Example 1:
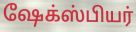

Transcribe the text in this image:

ஷேக்ஸ்பியர்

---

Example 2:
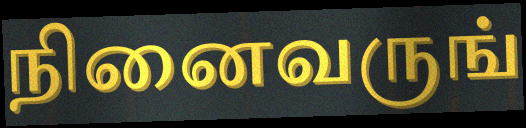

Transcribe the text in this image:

நினைவருங்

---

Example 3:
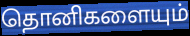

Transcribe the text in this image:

தொனிகளையும்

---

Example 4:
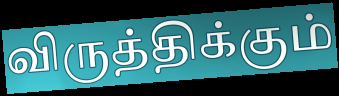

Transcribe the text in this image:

விருத்திக்கும்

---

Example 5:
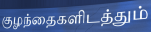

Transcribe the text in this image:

குழந்தைகளிடத்தும்